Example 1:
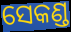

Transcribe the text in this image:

ସେକଣ୍ଡ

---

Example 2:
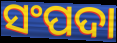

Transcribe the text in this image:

ସଂପଦା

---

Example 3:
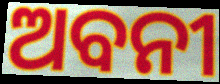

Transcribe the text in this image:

ଅବନୀ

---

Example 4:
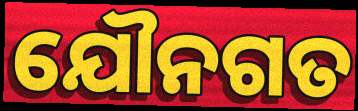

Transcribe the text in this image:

ଯୌନଗତ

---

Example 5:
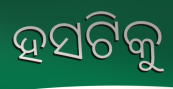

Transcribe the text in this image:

ହସଟିକୁ